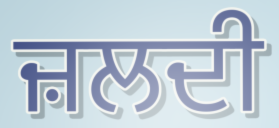
ਜ਼ਲਦੀ